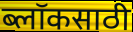
ब्लॉकसाठी